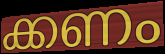
ക്കണം